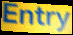
Entry